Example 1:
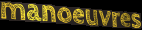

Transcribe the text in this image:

manoeuvres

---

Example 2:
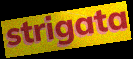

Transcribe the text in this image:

strigata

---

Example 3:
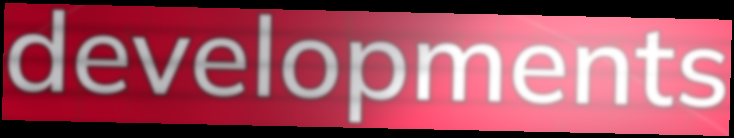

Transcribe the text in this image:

developments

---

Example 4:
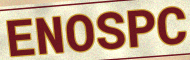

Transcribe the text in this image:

ENOSPC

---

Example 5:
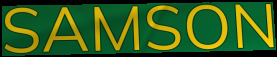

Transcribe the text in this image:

SAMSON